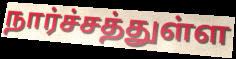
நார்ச்சத்துள்ள